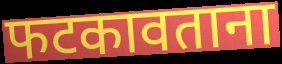
फटकावताना